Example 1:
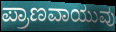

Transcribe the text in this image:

ಪ್ರಾಣವಾಯುವು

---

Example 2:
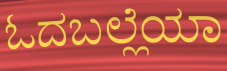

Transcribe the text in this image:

ಓದಬಲ್ಲೆಯಾ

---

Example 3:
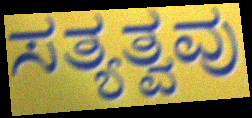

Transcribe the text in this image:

ಸತ್ಯತ್ವವು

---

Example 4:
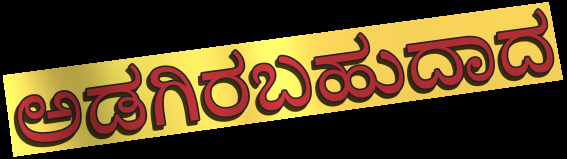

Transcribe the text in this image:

ಅಡಗಿರಬಹುದಾದ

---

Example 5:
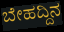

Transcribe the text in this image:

ಬೇಹದ್ದಿನ